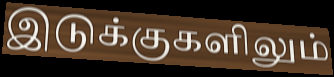
இடுக்குகளிலும்